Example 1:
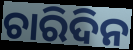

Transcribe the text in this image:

ଚାରିଦିନ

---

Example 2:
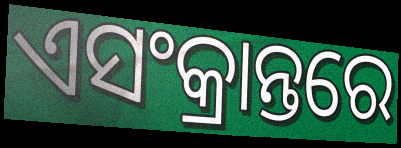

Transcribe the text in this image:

ଏସଂକ୍ରାନ୍ତରେ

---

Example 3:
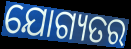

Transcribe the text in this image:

ଯୋଗ୍ୟତର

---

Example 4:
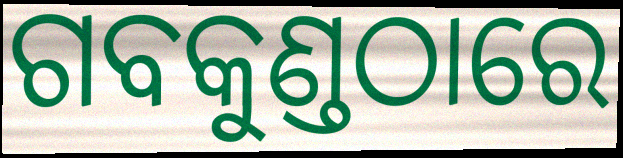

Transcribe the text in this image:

ଗବକୁଣ୍ଡଠାରେ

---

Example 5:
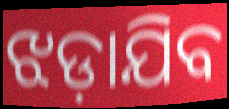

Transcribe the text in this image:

ଝଡ଼ାଯିବ